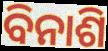
ବିନାଶି